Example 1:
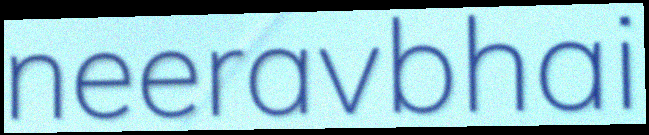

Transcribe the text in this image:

neeravbhai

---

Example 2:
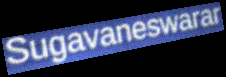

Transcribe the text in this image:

Sugavaneswarar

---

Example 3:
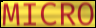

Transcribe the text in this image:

MICRO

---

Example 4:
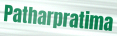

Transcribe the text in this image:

Patharpratima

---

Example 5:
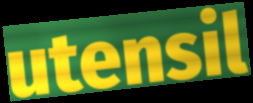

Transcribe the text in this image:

utensil